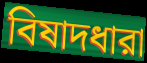
বিষাদধারা